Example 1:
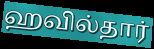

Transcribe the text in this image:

ஹவில்தார்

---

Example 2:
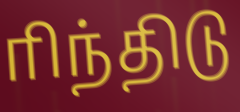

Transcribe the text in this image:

ரிந்திடு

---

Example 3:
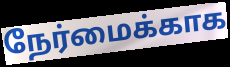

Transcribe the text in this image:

நேர்மைக்காக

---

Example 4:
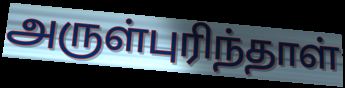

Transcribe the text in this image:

அருள்புரிந்தாள்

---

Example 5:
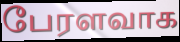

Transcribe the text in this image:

பேரளவாக